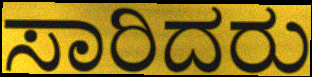
ಸಾರಿದರು